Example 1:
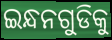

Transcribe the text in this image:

ଇନ୍ଧନଗୁଡିକୁ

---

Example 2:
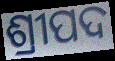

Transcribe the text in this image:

ଶ୍ରୀପଦ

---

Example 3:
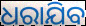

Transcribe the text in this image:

ଧରାଯିବ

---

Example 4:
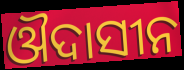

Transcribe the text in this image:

ଔଦାସୀନ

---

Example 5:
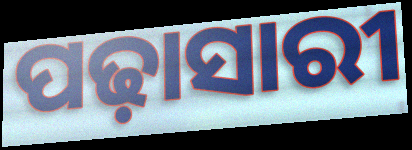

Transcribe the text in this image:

ପଢ଼ାସାରୀ